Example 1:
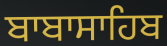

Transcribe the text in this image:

ਬਾਬਾਸਾਹਿਬ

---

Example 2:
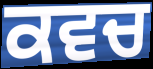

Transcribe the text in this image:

ਕਵਚ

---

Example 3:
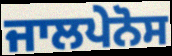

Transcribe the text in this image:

ਜਾਲਪੇਨੋਸ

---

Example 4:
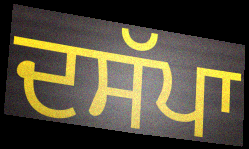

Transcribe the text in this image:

ਦਸੱਪਾ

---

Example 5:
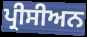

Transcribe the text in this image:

ਪ੍ਰੀਸੀਅਨ